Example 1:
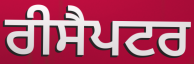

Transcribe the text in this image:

ਰੀਸੈਪਟਰ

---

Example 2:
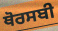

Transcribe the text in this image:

ਥੋਰਸਬੀ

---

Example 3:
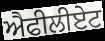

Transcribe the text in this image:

ਐਫੀਲੀਏਟ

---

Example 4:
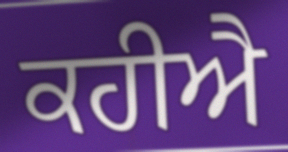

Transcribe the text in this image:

ਕਹੀਐ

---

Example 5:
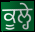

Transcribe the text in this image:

ਕੂਲ੍ਹੇ